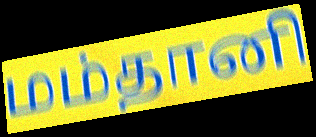
மம்தானி